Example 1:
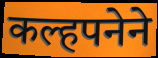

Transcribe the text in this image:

कल्हपनेने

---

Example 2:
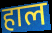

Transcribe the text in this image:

हाल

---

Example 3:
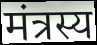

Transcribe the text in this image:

मंत्रस्य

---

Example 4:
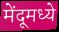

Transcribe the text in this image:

मेंदूमध्ये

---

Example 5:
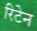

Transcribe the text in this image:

रिटेन